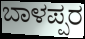
ಬಾಳಪ್ಪರ